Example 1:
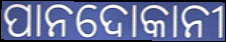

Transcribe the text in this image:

ପାନଦୋକାନୀ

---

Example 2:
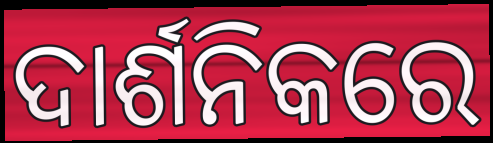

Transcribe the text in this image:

ଦାର୍ଶନିକରେ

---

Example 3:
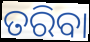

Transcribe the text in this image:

ତରିବା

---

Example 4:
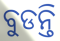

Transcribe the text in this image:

ବୁଡନ୍ତି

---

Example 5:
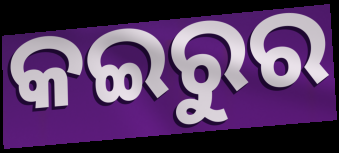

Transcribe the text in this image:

କଇରୁର